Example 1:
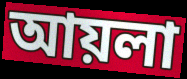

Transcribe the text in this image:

আয়লা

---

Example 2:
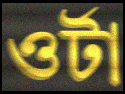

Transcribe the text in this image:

ওর্টা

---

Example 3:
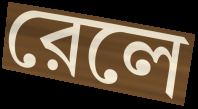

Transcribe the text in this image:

রেলে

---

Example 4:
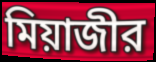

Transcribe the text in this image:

মিয়াজীর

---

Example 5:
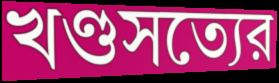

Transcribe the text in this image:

খণ্ডসত্যের